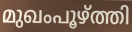
മുഖംപൂഴ്ത്തി